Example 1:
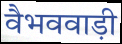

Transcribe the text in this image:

वैभववाड़ी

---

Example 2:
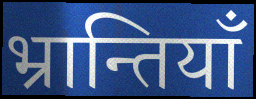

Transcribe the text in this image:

भ्रान्तियाँ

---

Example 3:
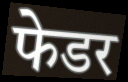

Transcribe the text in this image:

फेडर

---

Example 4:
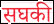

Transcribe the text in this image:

सघकी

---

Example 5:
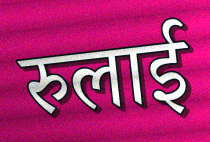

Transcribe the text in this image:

रुलाई